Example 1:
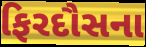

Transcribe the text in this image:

ફિરદૌસના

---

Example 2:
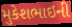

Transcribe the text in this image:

મુકેશભાઇની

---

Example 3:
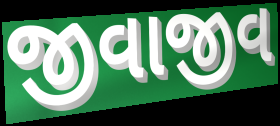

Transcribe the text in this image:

જીવાજીવ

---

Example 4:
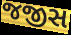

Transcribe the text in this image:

જજીસ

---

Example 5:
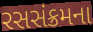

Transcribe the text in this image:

રસસંક્રમના